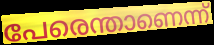
പേരെന്താണെന്ന്